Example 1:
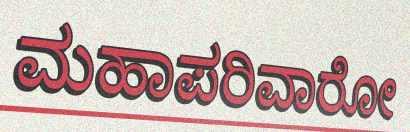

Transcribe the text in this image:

ಮಹಾಪರಿವಾರೋ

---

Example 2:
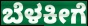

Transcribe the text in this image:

ಬೆಳಕೀಗೆ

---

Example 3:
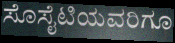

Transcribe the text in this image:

ಸೊಸೈಟಿಯವರಿಗೂ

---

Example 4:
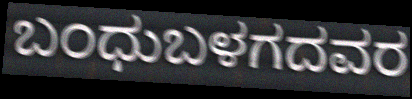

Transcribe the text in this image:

ಬಂಧುಬಳಗದವರ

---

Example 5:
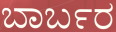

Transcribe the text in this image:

ಬಾರ್ಬರ